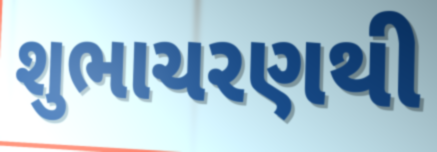
શુભાચરણથી